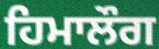
ਹਿਮਾਲੌਗ